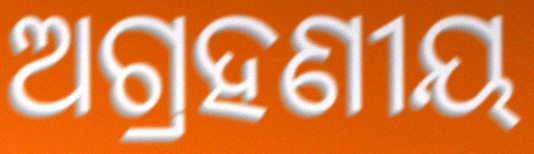
ଅଗ୍ରହଣୀୟ